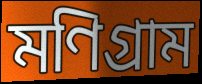
মণিগ্রাম